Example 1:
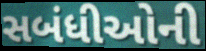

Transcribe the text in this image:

સબંધીઓની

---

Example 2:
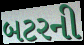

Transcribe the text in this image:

બટરની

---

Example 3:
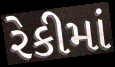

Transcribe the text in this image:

રેકીમાં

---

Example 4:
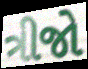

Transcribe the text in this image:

ત્રીજો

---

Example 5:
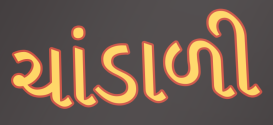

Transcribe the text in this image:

ચાંડાળી